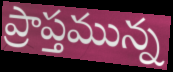
ప్రాప్తమున్న